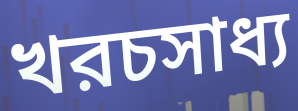
খরচসাধ্য